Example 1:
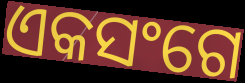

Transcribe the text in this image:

ଏକସଂଗେ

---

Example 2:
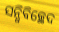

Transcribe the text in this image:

ସନ୍ଧିବିଚ୍ଛେଦ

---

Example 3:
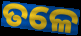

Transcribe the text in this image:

ତଳେ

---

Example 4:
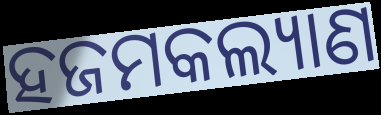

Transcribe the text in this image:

ହଜମକଲ୍ୟାଣ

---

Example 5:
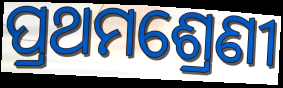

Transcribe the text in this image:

ପ୍ରଥମଶ୍ରେଣୀ